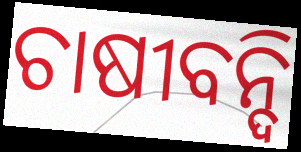
ଚାଷୀବନ୍ଦି